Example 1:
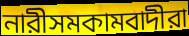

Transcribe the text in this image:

নারীসমকামবাদীরা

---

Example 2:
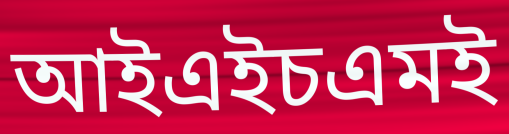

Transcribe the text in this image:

আইএইচএমই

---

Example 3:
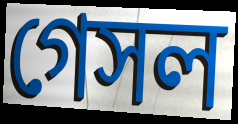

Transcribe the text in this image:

গেসল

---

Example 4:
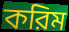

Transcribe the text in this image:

করিম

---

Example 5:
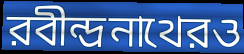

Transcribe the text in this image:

রবীন্দ্রনাথেরও